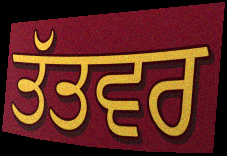
ਤੱਤਵਰ